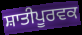
ਸ਼ਾਤੀਪੂਰਵਕ